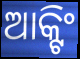
ଆକ୍ଟିଂ